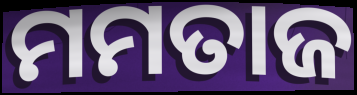
ମମତାଜ